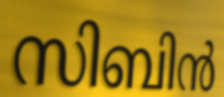
സിബിൻ